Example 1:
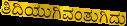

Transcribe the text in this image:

ತಿದಿಯುಗಿವಂತುಗಿದು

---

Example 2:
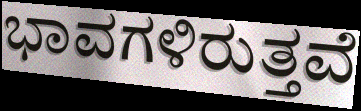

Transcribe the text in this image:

ಭಾವಗಳಿರುತ್ತವೆ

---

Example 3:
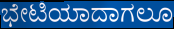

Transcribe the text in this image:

ಭೇಟಿಯಾದಾಗಲೂ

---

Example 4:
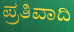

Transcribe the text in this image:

ಪ್ರತಿವಾದಿ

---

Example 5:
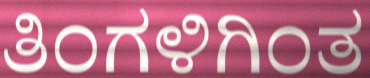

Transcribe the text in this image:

ತಿಂಗಳಿಗಿಂತ